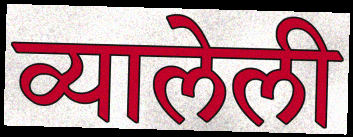
व्यालेली